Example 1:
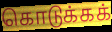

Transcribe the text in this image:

கொடுக்கக்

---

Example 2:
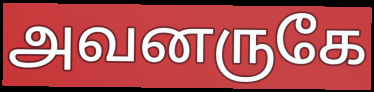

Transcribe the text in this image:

அவனருகே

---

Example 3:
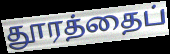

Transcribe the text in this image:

தூரத்தைப்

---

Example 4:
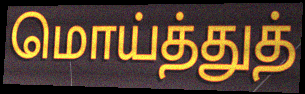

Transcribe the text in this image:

மொய்த்துத்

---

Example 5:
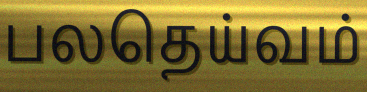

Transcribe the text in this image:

பலதெய்வம்